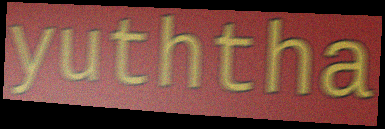
yuththa